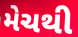
મેચથી